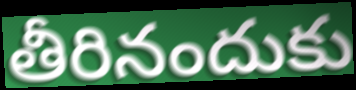
తీరినందుకు